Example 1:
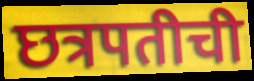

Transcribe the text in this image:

छत्रपतीची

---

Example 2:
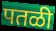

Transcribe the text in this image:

पतळी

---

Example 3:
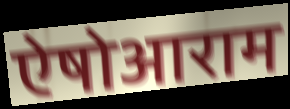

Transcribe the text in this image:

ऐषोआराम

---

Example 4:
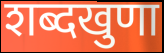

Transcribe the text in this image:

शब्दखुणा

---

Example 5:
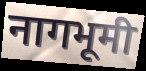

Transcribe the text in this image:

नागभूमी